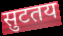
सुटतय